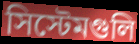
সিস্টেমগুলি